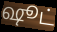
ஷூட்